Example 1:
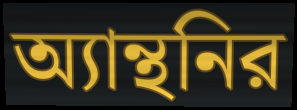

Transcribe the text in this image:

অ্যান্থনির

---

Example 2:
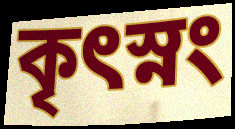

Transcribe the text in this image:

কৃৎস্নং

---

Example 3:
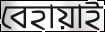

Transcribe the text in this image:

বেহায়াই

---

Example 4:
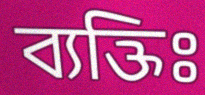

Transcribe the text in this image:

ব্যক্তিঃ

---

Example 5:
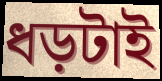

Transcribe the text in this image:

ধড়টাই